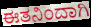
ಈತನಿಂದಾಗಿ